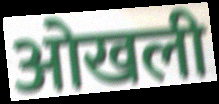
ओखली